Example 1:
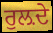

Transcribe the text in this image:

ਰੁਲ਼ਦੇ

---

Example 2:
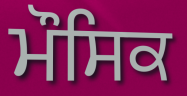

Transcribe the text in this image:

ਮੌਸਿਕ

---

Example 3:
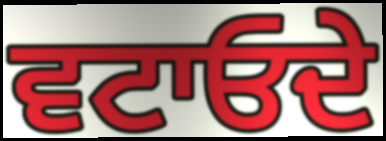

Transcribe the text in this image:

ਵਟਾਓਦੇ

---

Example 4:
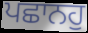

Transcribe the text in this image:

ਪਛਾਨਹੁ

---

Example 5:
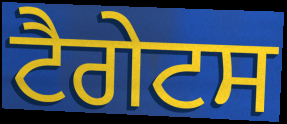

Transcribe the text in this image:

ਟੈਗੇਟਸ